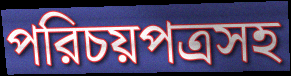
পরিচয়পত্রসহ